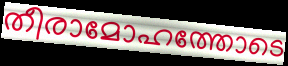
തീരാമോഹത്തോടെ